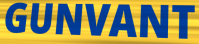
GUNVANT